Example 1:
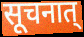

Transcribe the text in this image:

सूचनात्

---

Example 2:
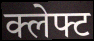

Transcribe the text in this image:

क्लेफ्ट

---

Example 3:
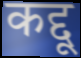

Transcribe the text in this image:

कद्दू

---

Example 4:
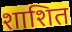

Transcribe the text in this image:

शाशित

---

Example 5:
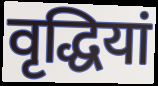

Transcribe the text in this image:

वृद्धियां